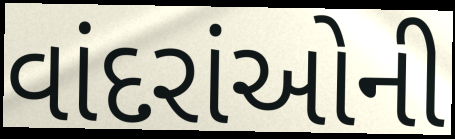
વાંદરાંઓની